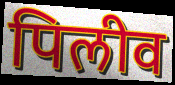
पिलीव